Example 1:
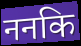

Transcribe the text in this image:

ननकि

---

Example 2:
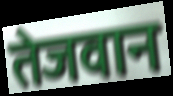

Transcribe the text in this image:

तेजवान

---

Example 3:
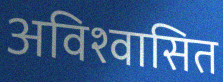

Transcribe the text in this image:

अविश्वासित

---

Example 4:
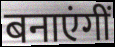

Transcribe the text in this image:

बनाएंगीं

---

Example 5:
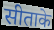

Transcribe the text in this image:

सीताके